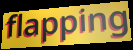
flapping